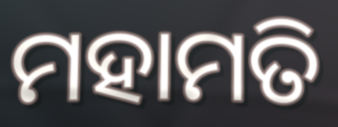
ମହାମତି